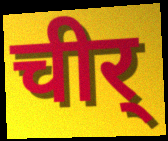
चीर्